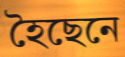
হৈছেনে